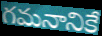
గమనానికే